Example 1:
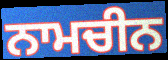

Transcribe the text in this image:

ਨਾਮਚੀਨ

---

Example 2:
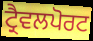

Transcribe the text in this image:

ਟ੍ਰੈਵਲਪੋਰਟ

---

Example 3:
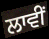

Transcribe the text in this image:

ਲਾਵੀਂ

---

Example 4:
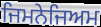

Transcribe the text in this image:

ਜਿਮਨੇਜਿਅਮ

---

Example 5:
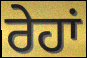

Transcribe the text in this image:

ਰੇਹਾਂ